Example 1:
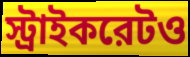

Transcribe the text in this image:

স্ট্রাইকরেটও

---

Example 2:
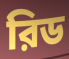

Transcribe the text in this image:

রিড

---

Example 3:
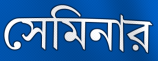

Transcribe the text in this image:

সেমিনার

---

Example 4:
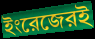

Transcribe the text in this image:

ইংরেজেরই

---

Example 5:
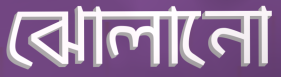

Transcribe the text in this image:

ঝোলানো